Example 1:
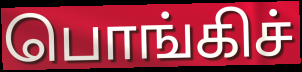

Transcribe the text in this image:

பொங்கிச்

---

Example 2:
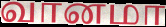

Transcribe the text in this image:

வானமா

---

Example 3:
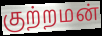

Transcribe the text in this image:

குற்றமன்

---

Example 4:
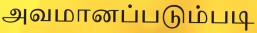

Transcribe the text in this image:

அவமானப்படும்படி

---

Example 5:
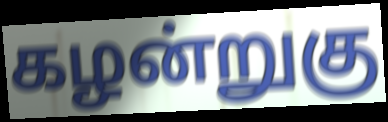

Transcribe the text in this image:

கழன்றுகு